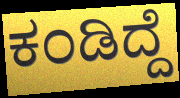
ಕಂಡಿದ್ದೆ